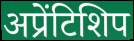
अप्रेंटिशिप